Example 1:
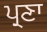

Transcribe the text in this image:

ਪ੍ਰਣਾ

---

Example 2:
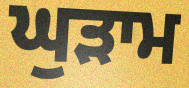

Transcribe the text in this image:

ਘੁੜਾਮ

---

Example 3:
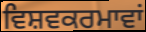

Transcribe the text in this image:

ਵਿਸ਼ਵਕਰਮਾਵਾਂ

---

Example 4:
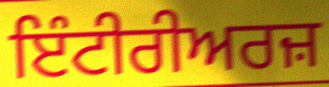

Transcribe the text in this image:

ਇੰਟੀਰੀਅਰਜ਼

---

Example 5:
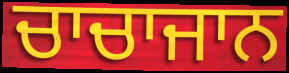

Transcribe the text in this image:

ਚਾਚਾਜਾਨ